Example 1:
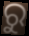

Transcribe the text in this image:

ରୁ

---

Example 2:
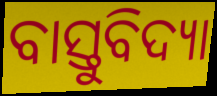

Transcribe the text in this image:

ବାସ୍ତୁବିଦ୍ୟା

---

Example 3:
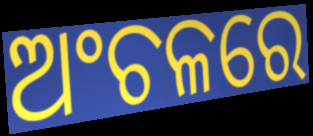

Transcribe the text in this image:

ଅଂଚଳରେ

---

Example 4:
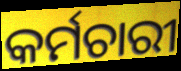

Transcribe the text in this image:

କର୍ମଚାରୀ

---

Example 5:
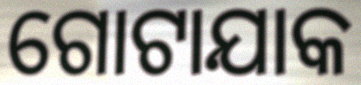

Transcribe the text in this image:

ଗୋଟାଯାକ